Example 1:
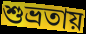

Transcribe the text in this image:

শুভ্রতায়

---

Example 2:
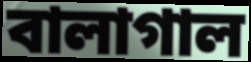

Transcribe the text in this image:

বালাগাল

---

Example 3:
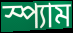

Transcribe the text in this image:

স্প্যাম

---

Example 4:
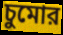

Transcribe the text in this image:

চুমোর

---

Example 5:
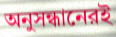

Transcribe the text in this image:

অনুসন্ধানেরই